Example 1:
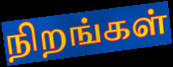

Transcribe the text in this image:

நிறங்கள்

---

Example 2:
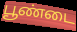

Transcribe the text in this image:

பூண்டை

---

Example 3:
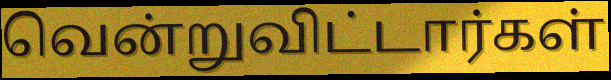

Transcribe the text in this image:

வென்றுவிட்டார்கள்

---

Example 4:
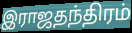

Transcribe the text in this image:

இராஜதந்திரம்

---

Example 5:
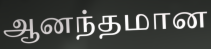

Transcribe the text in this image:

ஆனந்தமான